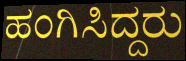
ಹಂಗಿಸಿದ್ದರು